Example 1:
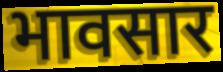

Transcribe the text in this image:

भावसार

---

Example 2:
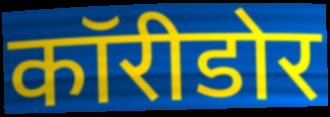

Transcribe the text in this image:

कॉरीडोर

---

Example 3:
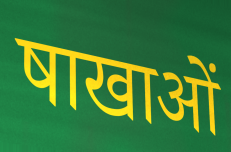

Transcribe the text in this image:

षाखाओं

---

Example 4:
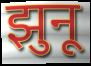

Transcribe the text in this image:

झुनू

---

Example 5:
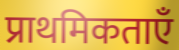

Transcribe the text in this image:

प्राथमिकताएँ